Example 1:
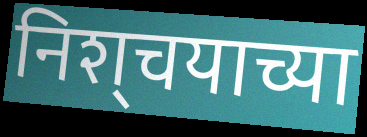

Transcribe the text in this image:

निश्चयाच्या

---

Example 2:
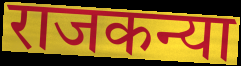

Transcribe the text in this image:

राजकन्या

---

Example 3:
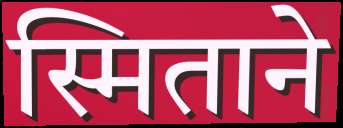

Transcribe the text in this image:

स्मिताने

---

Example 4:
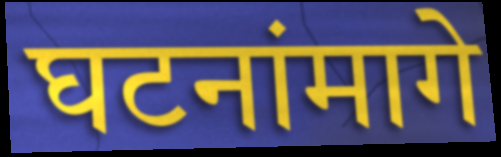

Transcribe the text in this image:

घटनांमागे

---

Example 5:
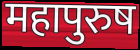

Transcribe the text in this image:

महापुरुष